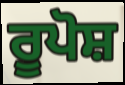
ਰੂਪੋਸ਼